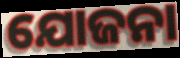
ଯୋଜନା